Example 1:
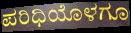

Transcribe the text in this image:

ಪರಿಧಿಯೊಳಗೂ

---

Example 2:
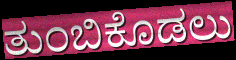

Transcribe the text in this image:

ತುಂಬಿಕೊಡಲು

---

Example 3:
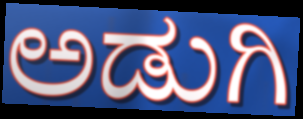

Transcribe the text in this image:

ಅಡುಗಿ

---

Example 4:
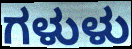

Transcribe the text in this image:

ಗಳುಳು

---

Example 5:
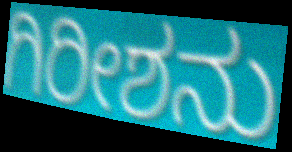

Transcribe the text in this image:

ಗಿರೀಶನು